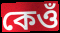
কেওঁ